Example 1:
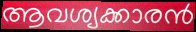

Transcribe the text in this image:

ആവശ്യക്കാരൻ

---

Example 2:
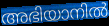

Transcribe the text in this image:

അഭിയാനിൽ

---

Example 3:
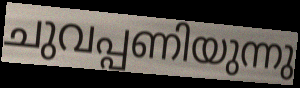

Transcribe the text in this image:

ചുവപ്പണിയുന്നു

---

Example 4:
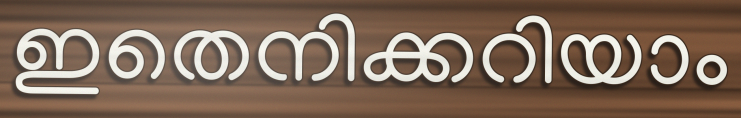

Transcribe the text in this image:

ഇതെനിക്കറിയാം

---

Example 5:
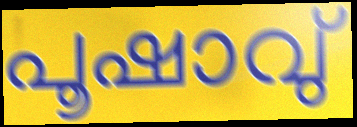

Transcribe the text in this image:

പൂഷാവു്